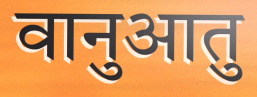
वानुआतु